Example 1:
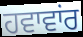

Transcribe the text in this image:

ਹਵਾਵਾਂਰ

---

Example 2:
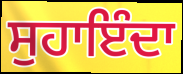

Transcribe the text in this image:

ਸੁਹਾਇੰਦਾ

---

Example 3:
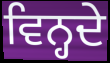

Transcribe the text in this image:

ਵਿਨ੍ਹਦੇ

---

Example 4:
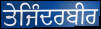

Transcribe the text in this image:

ਤੇਜਿੰਦਰਬੀਰ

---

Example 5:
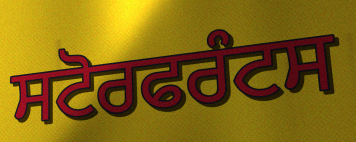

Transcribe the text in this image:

ਸਟੋਰਫਰੰਟਸ